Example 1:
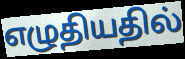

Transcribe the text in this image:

எழுதியதில்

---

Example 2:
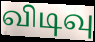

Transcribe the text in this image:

விடிவு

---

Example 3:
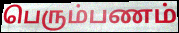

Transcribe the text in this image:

பெரும்பணம்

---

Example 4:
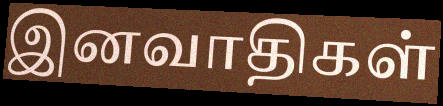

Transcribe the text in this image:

இனவாதிகள்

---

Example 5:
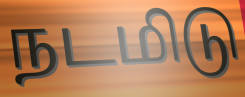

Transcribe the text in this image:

நடமிடு